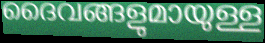
ദൈവങ്ങളുമായുള്ള